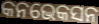
କନଭେକସନ